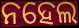
ନହେଲ